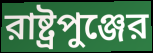
রাষ্ট্রপুঞ্জের